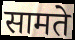
सामते